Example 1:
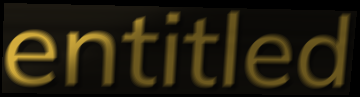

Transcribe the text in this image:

entitled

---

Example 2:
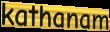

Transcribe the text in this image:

kathanam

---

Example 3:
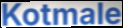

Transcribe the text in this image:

Kotmale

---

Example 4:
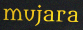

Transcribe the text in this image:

mujara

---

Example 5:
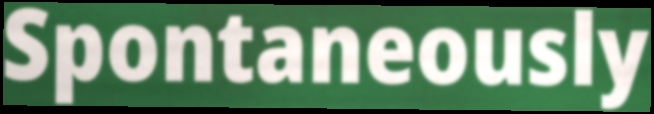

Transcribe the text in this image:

Spontaneously